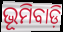
ଭୂମିବାଡ଼ି